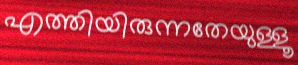
എത്തിയിരുന്നതേയുള്ളൂ